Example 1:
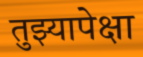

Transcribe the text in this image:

तुझ्यापेक्षा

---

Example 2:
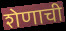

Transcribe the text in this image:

शेणाची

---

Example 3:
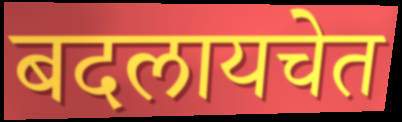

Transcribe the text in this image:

बदलायचेत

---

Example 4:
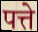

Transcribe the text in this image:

पत्ते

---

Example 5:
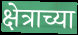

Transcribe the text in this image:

क्षेत्राच्या